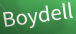
Boydell